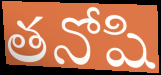
తనోషి